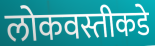
लोकवस्तीकडे